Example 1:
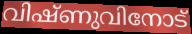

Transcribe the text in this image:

വിഷ്ണുവിനോട്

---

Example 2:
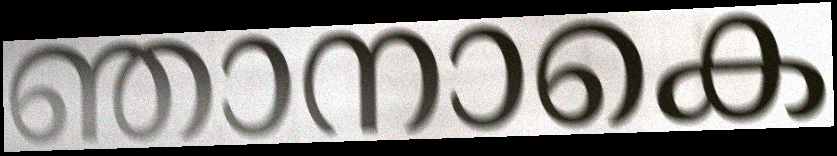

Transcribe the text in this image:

ഞാനാകെ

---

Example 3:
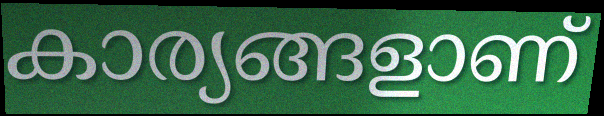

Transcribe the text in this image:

കാര്യങ്ങളാണ്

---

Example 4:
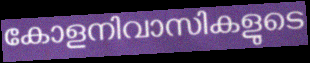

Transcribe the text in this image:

കോളനിവാസികളുടെ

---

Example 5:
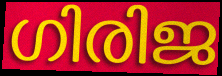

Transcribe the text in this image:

ഗിരിജ